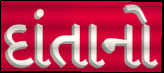
દાંતાનો